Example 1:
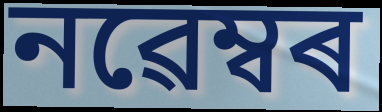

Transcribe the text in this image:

নৱেম্বৰ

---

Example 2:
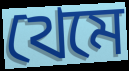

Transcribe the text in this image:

থেমে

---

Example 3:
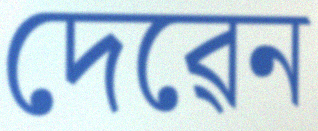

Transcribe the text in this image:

দেৱেন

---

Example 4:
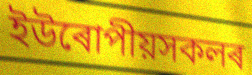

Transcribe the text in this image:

ইউৰোপীয়সকলৰ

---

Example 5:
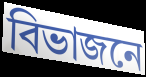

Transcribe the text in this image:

বিভাজনে